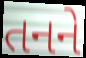
તનને